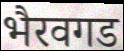
भैरवगड